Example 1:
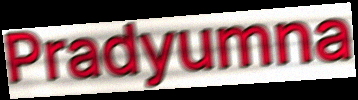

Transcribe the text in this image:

Pradyumna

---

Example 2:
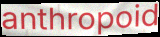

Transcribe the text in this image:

anthropoid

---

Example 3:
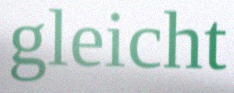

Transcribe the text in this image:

gleicht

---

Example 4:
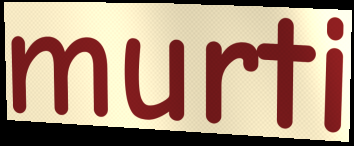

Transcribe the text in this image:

murti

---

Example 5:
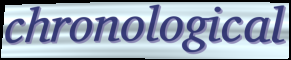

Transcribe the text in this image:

chronological